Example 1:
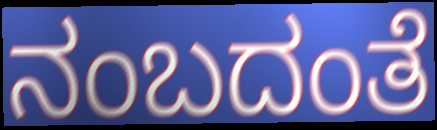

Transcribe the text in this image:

ನಂಬದಂತೆ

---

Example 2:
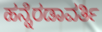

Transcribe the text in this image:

ಹನ್ನೆರಡಾವರ್ತಿ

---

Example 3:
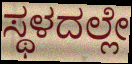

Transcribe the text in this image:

ಸ್ಥಳದಲ್ಲೇ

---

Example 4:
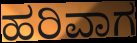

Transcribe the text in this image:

ಹರಿವಾಗ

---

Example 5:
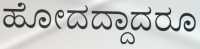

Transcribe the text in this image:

ಹೋದದ್ದಾದರೂ